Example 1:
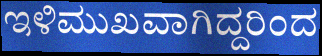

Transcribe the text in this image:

ಇಳಿಮುಖವಾಗಿದ್ದರಿಂದ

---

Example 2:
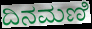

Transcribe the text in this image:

ದಿನಮಣಿ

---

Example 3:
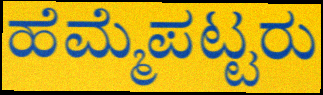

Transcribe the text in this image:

ಹೆಮ್ಮೆಪಟ್ಟರು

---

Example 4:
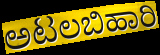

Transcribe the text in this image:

ಅಟಲಬಿಹಾರಿ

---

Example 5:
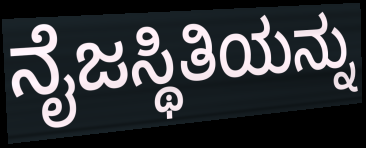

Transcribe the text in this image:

ನೈಜಸ್ಥಿತಿಯನ್ನು